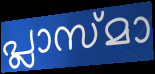
പ്ലാസ്മാ